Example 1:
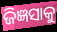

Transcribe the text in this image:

ଜିଜ୍ଞସାକୁ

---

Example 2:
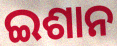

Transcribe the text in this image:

ଇଶାନ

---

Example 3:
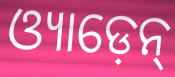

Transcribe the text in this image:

ଓ୍ୟାଡ଼େନ୍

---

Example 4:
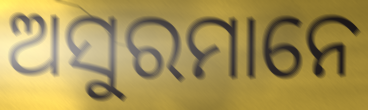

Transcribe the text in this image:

ଅସୁରମାନେ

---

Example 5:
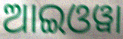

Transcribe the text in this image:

ଆଇଓୱା